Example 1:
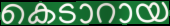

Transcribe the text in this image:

കെടാറായ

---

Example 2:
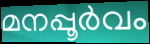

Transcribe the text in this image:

മനപ്പൂർവം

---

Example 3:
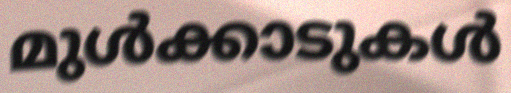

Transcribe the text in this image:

മുൾക്കാടുകൾ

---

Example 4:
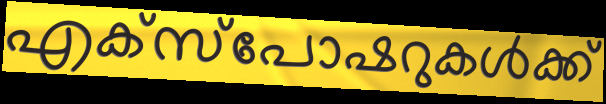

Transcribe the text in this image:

എക്സ്പോഷറുകൾക്ക്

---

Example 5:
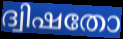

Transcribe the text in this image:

ദ്വിഷതോ